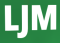
LJM